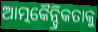
ଆତ୍ମକୈନ୍ଦ୍ରିକତାକୁ